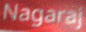
Nagaraj